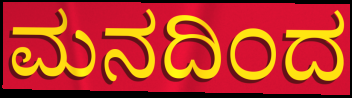
ಮನದಿಂದ